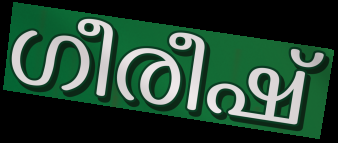
ഗീരീഷ്